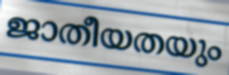
ജാതീയതയും